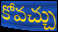
కోవచ్చు